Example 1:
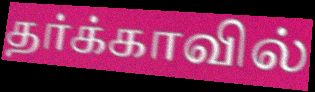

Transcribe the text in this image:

தர்க்காவில்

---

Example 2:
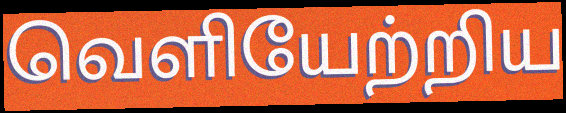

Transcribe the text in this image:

வெளியேற்றிய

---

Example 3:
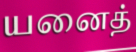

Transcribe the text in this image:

யனைத்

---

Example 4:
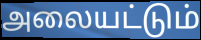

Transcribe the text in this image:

அலையட்டும்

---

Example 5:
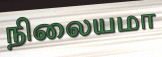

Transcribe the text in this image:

நிலையமா